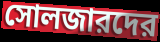
সোলজারদের